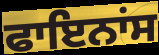
ਫਾਇਨਾਂਸ